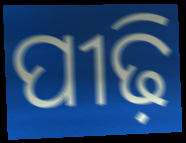
ପୀଢ଼ି